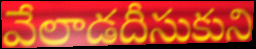
వేలాడదీసుకుని